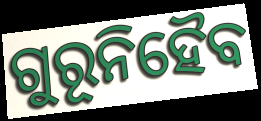
ଗୁରୂନିହୈବ